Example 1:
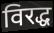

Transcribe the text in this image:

विरद्ध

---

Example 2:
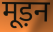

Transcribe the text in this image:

मूड़न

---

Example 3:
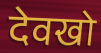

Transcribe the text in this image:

देवखो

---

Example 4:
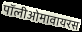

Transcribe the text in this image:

पॉलीओमावायरस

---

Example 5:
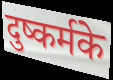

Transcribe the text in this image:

दुष्कर्मके